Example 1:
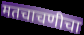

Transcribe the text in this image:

मतचाचणीचा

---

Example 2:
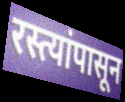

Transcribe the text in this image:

रस्त्यांपासून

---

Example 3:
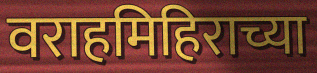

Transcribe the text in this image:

वराहमिहिराच्या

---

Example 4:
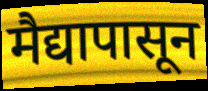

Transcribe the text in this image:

मैद्यापासून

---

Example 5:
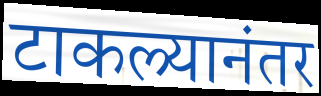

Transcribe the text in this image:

टाकल्यानंतर